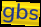
gbs